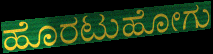
ಹೊರಟುಹೋಗು